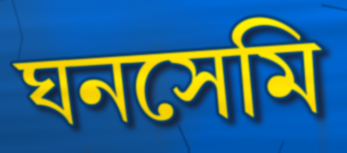
ঘনসেমি